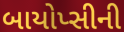
બાયોપ્સીની